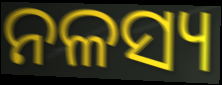
ନଳସ୍ୟ